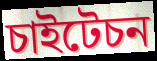
চাইটেচন